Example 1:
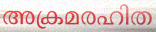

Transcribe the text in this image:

അക്രമരഹിത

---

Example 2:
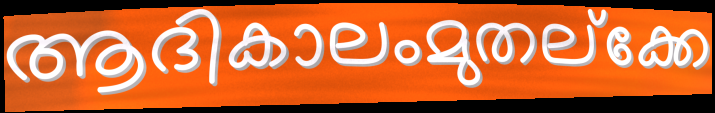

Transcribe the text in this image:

ആദികാലംമുതല്ക്കേ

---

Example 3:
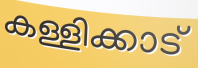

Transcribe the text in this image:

കള്ളിക്കാട്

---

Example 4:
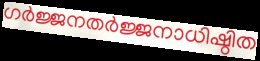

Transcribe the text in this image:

ഗർജ്ജനതർജ്ജനാധിഷ്ഠിത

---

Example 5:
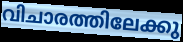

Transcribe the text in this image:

വിചാരത്തിലേക്കു